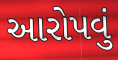
આરોપવું